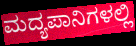
ಮದ್ಯಪಾನಿಗಳಲ್ಲಿ